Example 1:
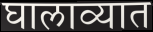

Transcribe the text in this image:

घालाव्यात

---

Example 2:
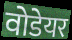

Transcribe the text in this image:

वोडेयर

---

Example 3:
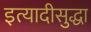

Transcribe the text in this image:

इत्यादीसुद्धा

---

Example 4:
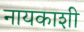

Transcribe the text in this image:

नायकाशी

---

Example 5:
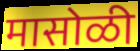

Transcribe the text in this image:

मासोळी